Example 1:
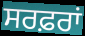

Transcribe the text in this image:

ਸਰਫ਼ਰਾਂ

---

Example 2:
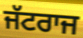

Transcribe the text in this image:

ਜੱਟਰਾਜ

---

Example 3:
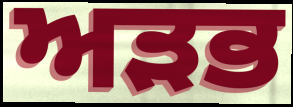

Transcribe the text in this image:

ਅੜਭ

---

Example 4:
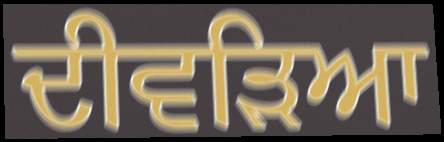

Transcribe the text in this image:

ਦੀਵੜਿਆ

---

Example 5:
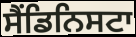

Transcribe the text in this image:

ਸੈਂਡਿਨਿਸਟਾ